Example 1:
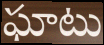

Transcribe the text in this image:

ఘాటు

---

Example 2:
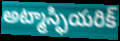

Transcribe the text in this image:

అట్మాస్ఫియరిక్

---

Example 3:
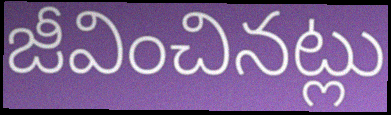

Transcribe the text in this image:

జీవించినట్లు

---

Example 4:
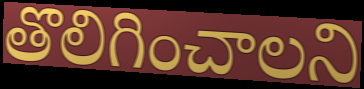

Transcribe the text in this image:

తొలిగించాలని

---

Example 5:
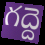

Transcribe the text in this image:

గద్దె